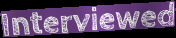
Interviewed